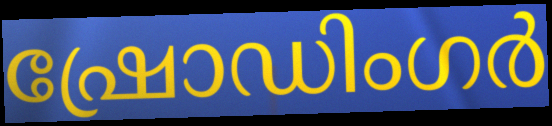
ഷ്രോഡിംഗർ